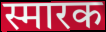
स्मारक